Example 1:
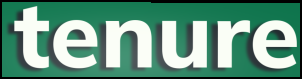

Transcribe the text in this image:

tenure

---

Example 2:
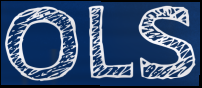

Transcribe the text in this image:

OLS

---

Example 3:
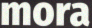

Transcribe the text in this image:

mora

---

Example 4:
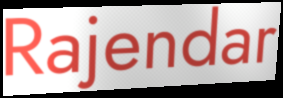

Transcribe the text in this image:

Rajendar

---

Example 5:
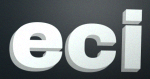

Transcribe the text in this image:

eci